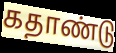
கதாண்டு